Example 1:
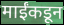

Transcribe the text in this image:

माईंकडून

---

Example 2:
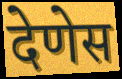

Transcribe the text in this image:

देणेस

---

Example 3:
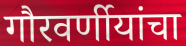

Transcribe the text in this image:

गौरवर्णीयांचा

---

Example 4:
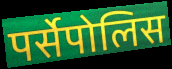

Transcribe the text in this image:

पर्सेपोलिस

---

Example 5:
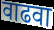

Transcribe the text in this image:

वाढवा